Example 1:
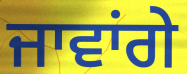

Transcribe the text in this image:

ਜਾਵਾਂਗੇ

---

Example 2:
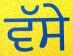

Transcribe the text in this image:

ਵੱਸੇ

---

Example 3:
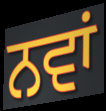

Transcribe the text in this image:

ਨਵਾਂ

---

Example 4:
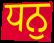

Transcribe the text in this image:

ਧਨੁ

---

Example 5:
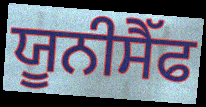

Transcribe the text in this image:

ਯੂਨੀਸੈੱਫ